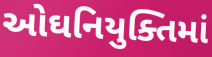
ઓઘનિયુક્તિમાં